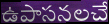
ఉపాసనలచే